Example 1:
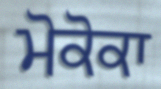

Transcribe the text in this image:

ਮੋਕੋਕਾ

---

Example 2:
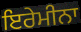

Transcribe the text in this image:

ਇਰੇਮੀਨਾ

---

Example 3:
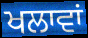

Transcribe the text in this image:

ਖਲਾਵਾਂ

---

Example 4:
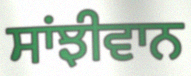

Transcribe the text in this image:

ਸਾਂਝੀਵਾਨ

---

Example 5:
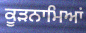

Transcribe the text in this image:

ਕੂੜਨਾਮਿਆਂ